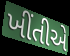
ખીંતીએ